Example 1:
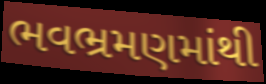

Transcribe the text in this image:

ભવભ્રમણમાંથી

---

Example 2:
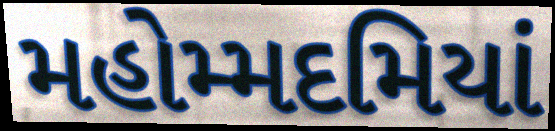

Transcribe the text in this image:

મહોમ્મદમિયાં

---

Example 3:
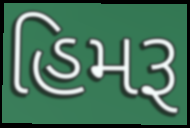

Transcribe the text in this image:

હિમરૂ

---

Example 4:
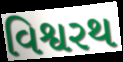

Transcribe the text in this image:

વિશ્વરથ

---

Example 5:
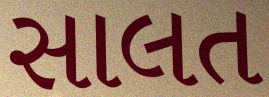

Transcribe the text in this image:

સાલત